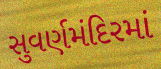
સુવર્ણમંદિરમાં